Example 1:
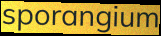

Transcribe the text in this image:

sporangium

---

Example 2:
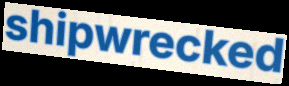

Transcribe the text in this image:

shipwrecked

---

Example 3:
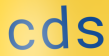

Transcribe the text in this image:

cds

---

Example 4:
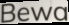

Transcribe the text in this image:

Bewa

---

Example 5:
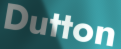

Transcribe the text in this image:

Dutton